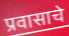
प्रवासाचे